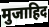
मुजाहिद